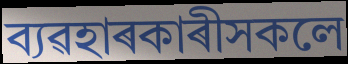
ব্যৱহাৰকাৰীসকলে